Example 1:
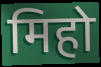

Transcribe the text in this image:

मिहो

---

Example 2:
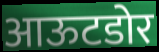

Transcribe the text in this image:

आऊटडोर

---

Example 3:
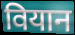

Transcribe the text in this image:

वियान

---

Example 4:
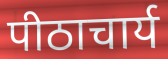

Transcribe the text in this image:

पीठाचार्य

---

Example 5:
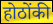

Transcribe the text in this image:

होठोंकी